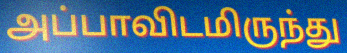
அப்பாவிடமிருந்து